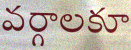
వర్గాలకూ